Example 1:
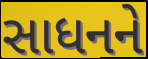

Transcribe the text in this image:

સાધનને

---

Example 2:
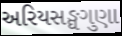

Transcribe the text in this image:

અરિયસઙ્ઘગુણા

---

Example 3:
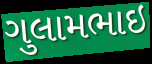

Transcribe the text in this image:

ગુલામભાઇ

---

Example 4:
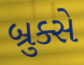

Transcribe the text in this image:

બ્રુક્સે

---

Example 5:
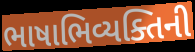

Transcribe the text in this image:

ભાષાભિવ્યક્તિની